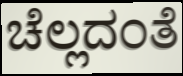
ಚೆಲ್ಲದಂತೆ